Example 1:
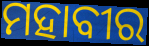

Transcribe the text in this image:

ମହାବୀର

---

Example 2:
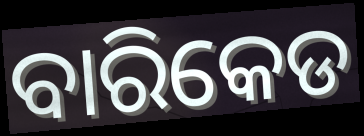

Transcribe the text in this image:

ବାରିକେଡ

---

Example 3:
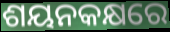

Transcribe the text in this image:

ଶୟନକକ୍ଷରେ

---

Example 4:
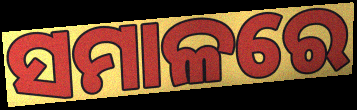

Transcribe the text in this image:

ସମାଳରେ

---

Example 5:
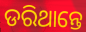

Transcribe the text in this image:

ଡରିଥାନ୍ତେ